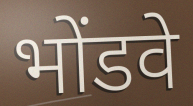
भोंडवे